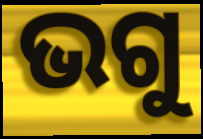
ଭଗୁ